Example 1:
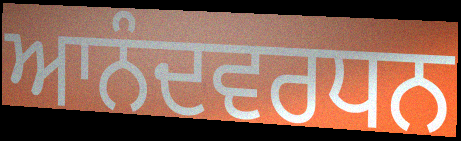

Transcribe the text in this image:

ਆਨੰਦਵਰਧਨ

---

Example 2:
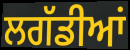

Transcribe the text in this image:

ਲਗੱਡੀਆਂ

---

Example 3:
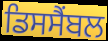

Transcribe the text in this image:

ਡਿਸਸੈਂਬਲ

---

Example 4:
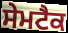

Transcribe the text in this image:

ਸੇਮਟੈਕ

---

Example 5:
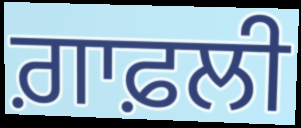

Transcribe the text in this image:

ਗ਼ਾਫ਼ਲੀ